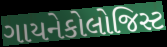
ગાયનેકોલોજિસ્ટ